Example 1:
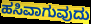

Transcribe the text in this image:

ಹಸಿವಾಗುವುದು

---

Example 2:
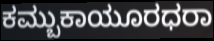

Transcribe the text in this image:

ಕಮ್ಬುಕಾಯೂರಧರಾ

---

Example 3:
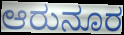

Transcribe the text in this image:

ಆರುನೂರ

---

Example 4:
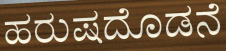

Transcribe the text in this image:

ಹರುಷದೊಡನೆ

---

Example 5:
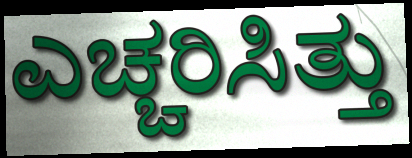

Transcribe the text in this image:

ಎಚ್ಚರಿಸಿತ್ತು